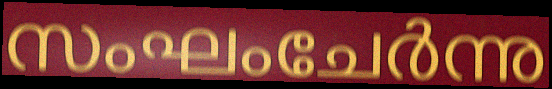
സംഘംചേർന്നു